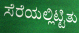
ಸೆರೆಯಲ್ಲಿಟ್ಟಿತು